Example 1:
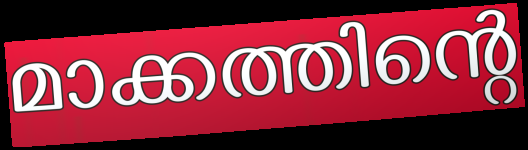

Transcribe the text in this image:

മാക്കത്തിന്റെ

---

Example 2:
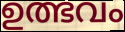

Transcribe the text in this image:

ഉത്ഭവം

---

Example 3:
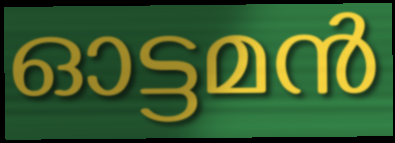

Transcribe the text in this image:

ഓട്ടമൻ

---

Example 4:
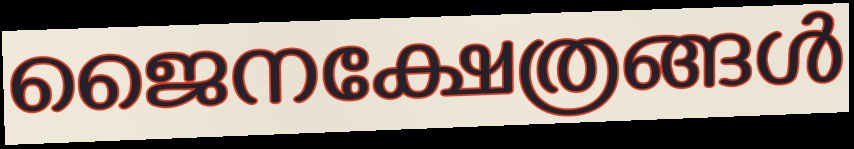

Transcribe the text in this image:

ജൈനക്ഷേത്രങ്ങൾ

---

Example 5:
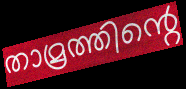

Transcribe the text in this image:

താമ്രത്തിന്റെ